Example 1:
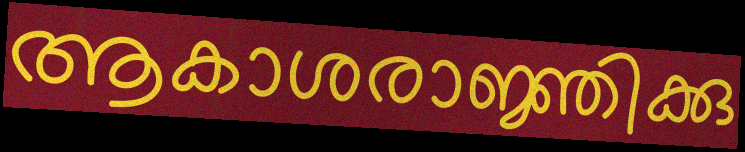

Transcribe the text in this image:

ആകാശരാജ്ഞിക്കു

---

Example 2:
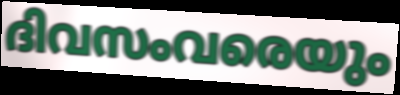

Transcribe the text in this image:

ദിവസംവരെയും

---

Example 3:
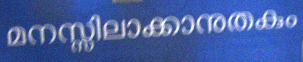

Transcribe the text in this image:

മനസ്സിലാക്കാനുതകും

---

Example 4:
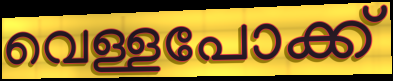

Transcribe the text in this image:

വെള്ളപോക്ക്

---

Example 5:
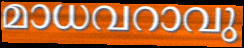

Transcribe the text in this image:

മാധവറാവു